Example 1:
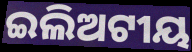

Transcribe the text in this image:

ଇଲିଅଟୀୟ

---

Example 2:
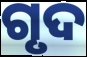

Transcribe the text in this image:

ଗୃଦ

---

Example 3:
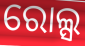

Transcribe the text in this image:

ରୋଲ୍ସ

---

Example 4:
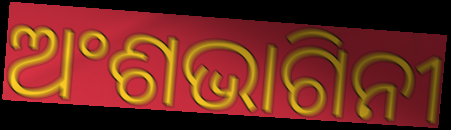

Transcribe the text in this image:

ଅଂଶଭାଗିନୀ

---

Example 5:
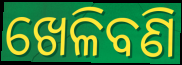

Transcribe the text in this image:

ଖେଳିବଣି